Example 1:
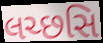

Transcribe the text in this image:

લચ્છસિ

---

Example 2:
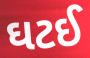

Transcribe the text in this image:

ઘટઈ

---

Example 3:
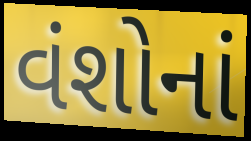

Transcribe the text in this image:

વંશોનાં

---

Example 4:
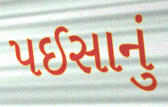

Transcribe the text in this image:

પઈસાનું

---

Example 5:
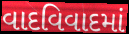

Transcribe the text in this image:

વાદવિવાદમાં